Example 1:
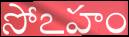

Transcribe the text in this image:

సోఽహం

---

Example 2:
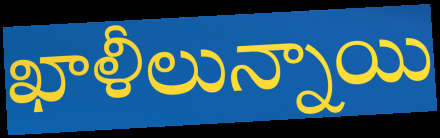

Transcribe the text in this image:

ఖాళీలున్నాయి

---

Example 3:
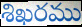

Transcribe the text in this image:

శిఖరము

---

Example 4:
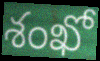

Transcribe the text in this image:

శంఖో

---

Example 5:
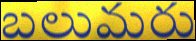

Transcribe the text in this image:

బలుమరు